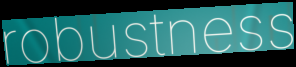
robustness